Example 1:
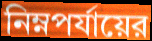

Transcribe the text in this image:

নিম্নপর্যায়ের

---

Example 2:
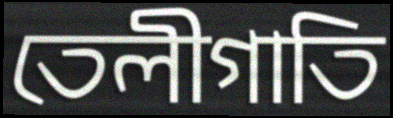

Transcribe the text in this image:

তেলীগাতি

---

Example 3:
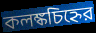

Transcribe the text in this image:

কলঙ্কচিহ্নের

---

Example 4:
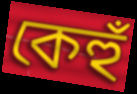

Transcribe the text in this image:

কেহুঁ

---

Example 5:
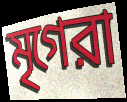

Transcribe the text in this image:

মৃগেরা